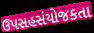
ઉપસહસંયોજકતા